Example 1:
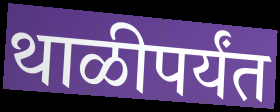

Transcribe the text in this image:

थाळीपर्यंत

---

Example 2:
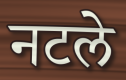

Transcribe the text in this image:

नटले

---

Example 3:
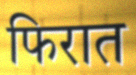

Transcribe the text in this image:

फिरात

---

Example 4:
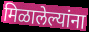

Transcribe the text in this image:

मिळालेल्यांना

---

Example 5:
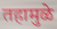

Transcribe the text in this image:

तहामुळे